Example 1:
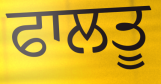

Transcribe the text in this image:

ਫਾਲਤੂ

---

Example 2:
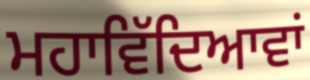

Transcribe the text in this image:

ਮਹਾਵਿੱਦਿਆਵਾਂ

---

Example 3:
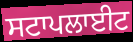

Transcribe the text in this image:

ਸਟਾਪਲਾਈਟ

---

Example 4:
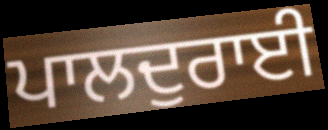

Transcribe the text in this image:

ਪਾਲਦੁਰਾਈ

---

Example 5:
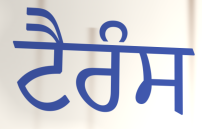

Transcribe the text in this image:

ਟੈਰੰਸ